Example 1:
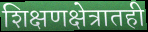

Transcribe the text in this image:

शिक्षणक्षेत्रातही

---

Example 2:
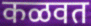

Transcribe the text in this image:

कळवत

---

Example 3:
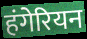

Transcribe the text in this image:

हंगेरियन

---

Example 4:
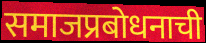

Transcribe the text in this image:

समाजप्रबोधनाची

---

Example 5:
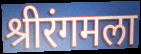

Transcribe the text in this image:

श्रीरंगमला